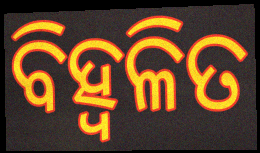
ବିହ୍ୱଳିତ